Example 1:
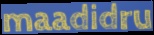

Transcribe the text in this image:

maadidru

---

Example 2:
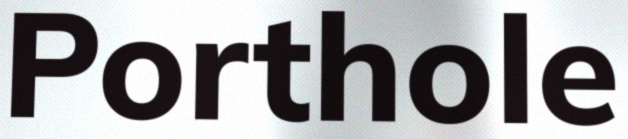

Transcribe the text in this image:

Porthole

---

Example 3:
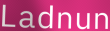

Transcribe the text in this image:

Ladnun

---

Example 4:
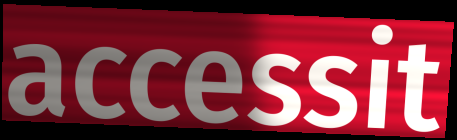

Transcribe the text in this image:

accessit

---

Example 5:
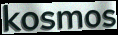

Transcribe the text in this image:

kosmos